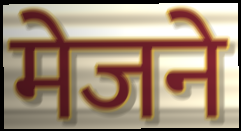
मेजने